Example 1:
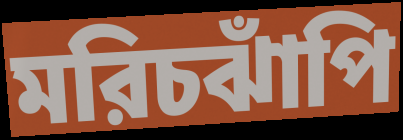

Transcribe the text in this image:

মরিচঝাঁপি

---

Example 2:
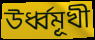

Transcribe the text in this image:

উর্ধ্বমূখী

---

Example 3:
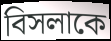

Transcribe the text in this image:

বিসলাকে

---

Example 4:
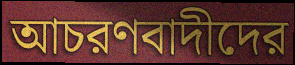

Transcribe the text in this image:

আচরণবাদীদের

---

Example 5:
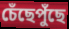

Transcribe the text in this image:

চেঁছেপুঁছে